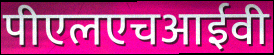
पीएलएचआईवी